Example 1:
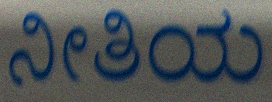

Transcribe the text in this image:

ನೀತಿಯ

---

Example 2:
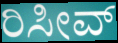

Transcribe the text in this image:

ರಿಸೀವ್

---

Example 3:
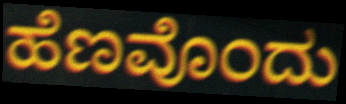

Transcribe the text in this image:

ಹೆಣವೊಂದು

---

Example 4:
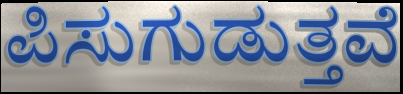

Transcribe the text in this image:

ಪಿಸುಗುಡುತ್ತವೆ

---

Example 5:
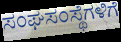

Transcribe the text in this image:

ಸಂಘಸಂಸ್ಥೆಗಳಿಗೆ